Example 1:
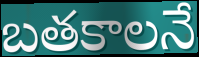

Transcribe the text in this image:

బతకాలనే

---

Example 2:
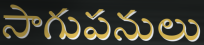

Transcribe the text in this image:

సాగుపనులు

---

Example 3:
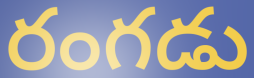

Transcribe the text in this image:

రంగడు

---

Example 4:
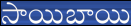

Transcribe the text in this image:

సాయిబాయి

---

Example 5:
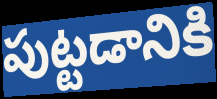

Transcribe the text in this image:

పుట్టడానికి